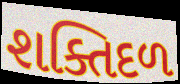
શક્તિદળ